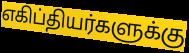
எகிப்தியர்களுக்கு